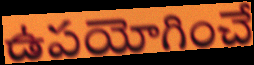
ఉపయోగించే